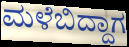
ಮಳೆಬಿದ್ದಾಗ